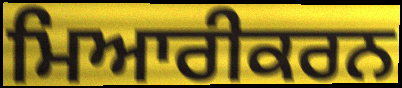
ਮਿਆਰੀਕਰਨ